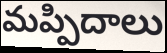
మప్పిదాలు